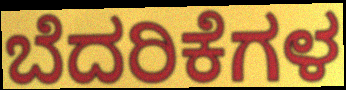
ಬೆದರಿಕೆಗಳ